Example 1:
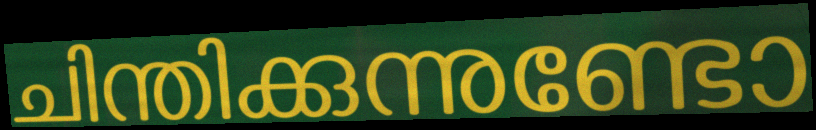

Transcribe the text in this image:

ചിന്തിക്കുന്നുണ്ടോ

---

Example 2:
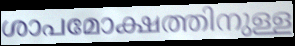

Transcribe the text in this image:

ശാപമോക്ഷത്തിനുള്ള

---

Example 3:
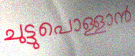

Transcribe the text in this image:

ചുട്ടുപൊള്ളാൻ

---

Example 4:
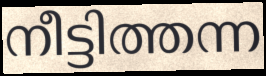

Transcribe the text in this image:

നീട്ടിത്തന്ന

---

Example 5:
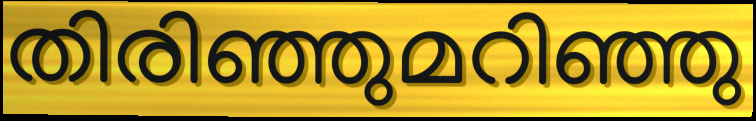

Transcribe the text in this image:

തിരിഞ്ഞുമറിഞ്ഞു